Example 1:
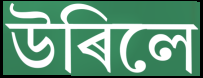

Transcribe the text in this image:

উৰিলে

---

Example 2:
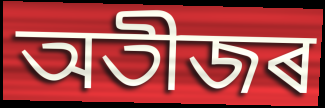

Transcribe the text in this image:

অতীজৰ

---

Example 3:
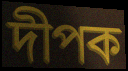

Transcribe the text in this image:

দীপক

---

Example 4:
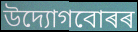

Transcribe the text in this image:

উদ্যোগবোৰৰ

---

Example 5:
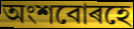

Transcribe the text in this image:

অংশবোৰহে